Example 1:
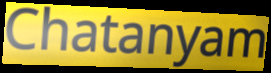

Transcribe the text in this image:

Chatanyam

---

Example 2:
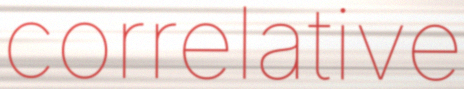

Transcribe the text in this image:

correlative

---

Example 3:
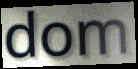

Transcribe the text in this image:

dom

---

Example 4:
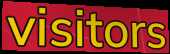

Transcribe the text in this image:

visitors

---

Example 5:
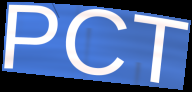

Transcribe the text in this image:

PCT